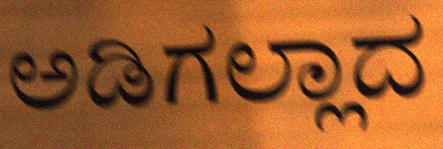
ಅಡಿಗಲ್ಲಾದ